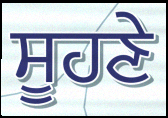
ਸੂਹਣੇ